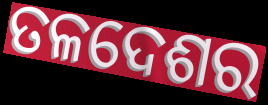
ତଳଦେଶର